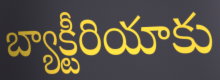
బ్యాక్టీరియాకు